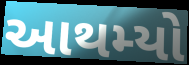
આથમ્યો